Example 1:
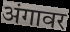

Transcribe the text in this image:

अंगावर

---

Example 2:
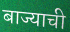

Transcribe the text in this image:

बाज्याची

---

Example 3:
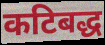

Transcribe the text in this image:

कटिबद्ध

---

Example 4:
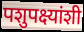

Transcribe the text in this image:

पशुपक्ष्यांशी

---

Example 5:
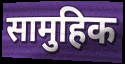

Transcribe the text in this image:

सामुहिक